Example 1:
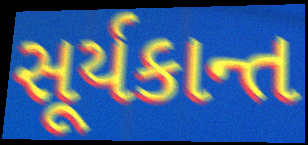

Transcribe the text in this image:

સૂર્યકાન્ત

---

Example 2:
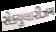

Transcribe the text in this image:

સેક્યુલારીઝમ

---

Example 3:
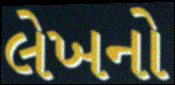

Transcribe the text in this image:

લેખનો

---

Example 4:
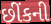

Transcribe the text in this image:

છીંકની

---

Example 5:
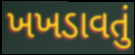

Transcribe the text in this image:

ખખડાવતું